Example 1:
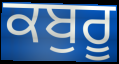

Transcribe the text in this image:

ਕਬੁਰੂ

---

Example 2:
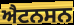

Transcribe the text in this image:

ਐਟਨਸਨ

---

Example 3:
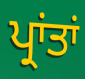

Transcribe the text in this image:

ਪ੍ਰਾਂਤਾਂ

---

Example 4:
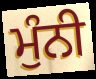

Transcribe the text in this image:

ਮੁੰਨੀ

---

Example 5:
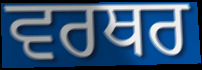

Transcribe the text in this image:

ਵਰਥਰ